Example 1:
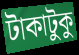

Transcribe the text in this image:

টাকাটুকু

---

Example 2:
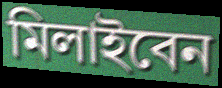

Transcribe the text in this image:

মিলাইবেন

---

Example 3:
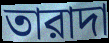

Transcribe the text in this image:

তারাদা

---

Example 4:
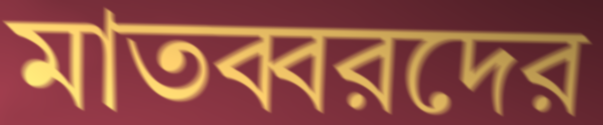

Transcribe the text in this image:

মাতব্বরদের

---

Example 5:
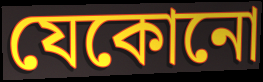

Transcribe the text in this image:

যেকোনো